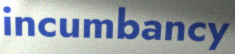
incumbancy